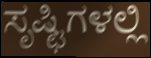
ಸೃಷ್ಟಿಗಳಲ್ಲಿ